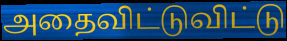
அதைவிட்டுவிட்டு